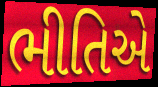
ભીતિએ